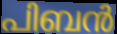
പിബൻ